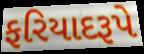
ફરિયાદરૂપે